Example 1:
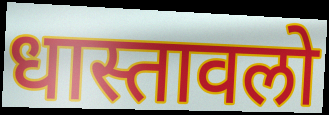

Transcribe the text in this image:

धास्तावलो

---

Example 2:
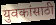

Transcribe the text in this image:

युवकांसाठी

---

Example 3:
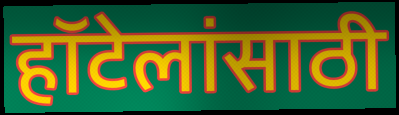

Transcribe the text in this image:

हॉटेलांसाठी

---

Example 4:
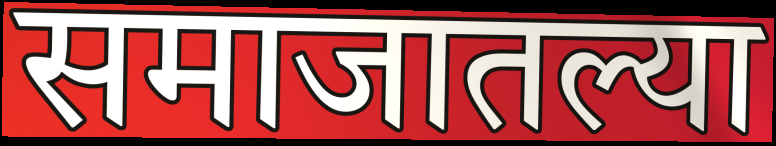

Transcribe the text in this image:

समाजातल्‍या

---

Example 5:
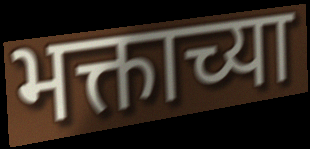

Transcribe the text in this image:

भक्ताच्या